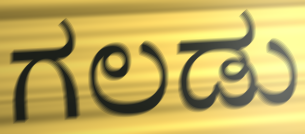
ಗಲಡು